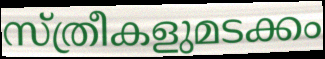
സ്ത്രീകളുമടക്കം